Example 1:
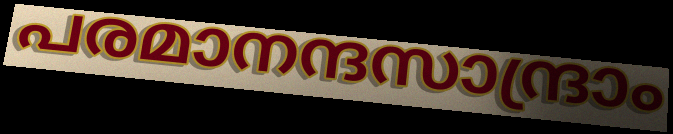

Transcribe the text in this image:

പരമാനന്ദസാന്ദ്രാം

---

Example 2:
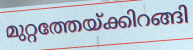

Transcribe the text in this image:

മുറ്റത്തേയ്ക്കിറങ്ങി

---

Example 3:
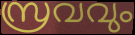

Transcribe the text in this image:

സ്രവവും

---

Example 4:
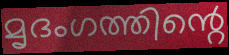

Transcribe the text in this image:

മൃദംഗത്തിന്റെ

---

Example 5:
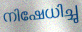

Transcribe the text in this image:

നിഷേധിച്ചു